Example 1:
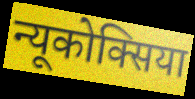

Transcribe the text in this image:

न्यूकोक्सिया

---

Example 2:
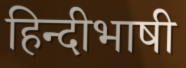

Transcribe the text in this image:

हिन्दीभाषी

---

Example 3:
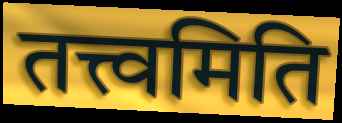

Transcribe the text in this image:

तत्त्वमिति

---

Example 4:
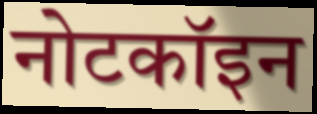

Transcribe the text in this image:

नोटकॉइन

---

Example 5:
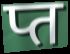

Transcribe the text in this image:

प्त